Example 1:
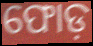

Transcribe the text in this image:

ଫୋଡ଼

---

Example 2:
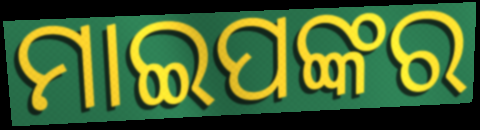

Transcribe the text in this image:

ମାଇପଙ୍କର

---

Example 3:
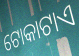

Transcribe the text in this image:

ଟୋକାଟାଏ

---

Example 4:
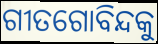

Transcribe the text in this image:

ଗୀତଗୋବିନ୍ଦକୁ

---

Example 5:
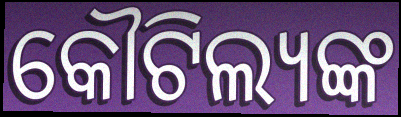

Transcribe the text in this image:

କୌଟିଲ୍ୟଙ୍କ